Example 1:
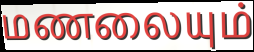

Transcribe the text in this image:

மணலையும்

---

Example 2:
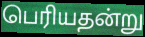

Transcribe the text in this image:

பெரியதன்று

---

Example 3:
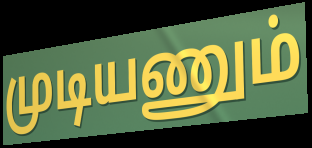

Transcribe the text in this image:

முடியணும்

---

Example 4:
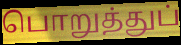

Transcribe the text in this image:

பொறுத்துப்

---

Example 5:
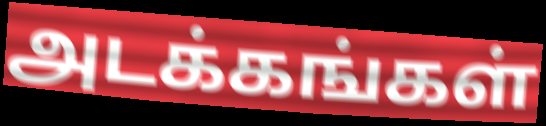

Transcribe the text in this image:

அடக்கங்கள்